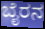
ಬೈರನ